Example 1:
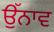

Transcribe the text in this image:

ਉੱਨਾਵ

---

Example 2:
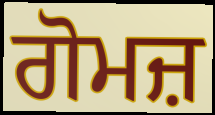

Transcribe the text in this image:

ਗੋਮਜ਼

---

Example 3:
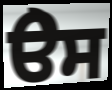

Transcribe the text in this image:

ੳੇਸ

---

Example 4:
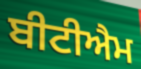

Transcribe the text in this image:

ਬੀਟੀਐਮ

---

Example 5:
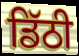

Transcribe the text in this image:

ਡਿੱਠੀ